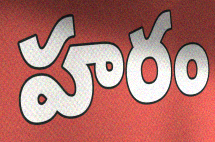
హరం